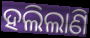
ହଲିଲାଣି